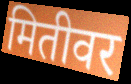
मितीवर